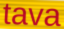
tava